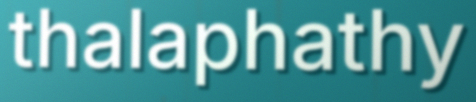
thalaphathy